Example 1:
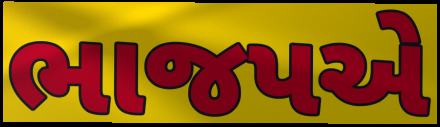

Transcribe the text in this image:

ભાજપએ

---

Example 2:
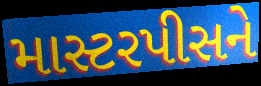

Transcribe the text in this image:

માસ્ટરપીસને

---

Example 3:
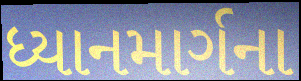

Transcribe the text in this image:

ધ્યાનમાર્ગના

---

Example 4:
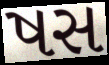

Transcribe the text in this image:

ષસ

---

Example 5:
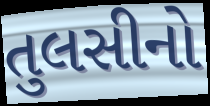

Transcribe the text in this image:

તુલસીનો